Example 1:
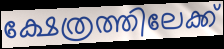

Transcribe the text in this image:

ക്ഷേത്രത്തിലേക്ക്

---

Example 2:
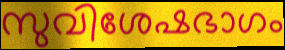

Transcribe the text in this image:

സുവിശേഷഭാഗം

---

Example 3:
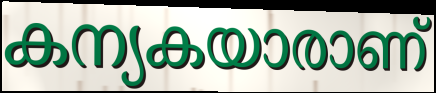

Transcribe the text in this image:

കന്യകയാരാണ്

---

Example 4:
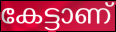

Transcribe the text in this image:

കേട്ടാണ്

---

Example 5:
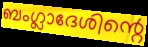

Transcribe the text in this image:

ബംഗ്ലാദേശിന്റെ